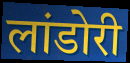
लांडोरी